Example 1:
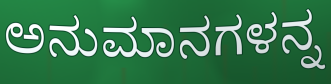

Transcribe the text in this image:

ಅನುಮಾನಗಳನ್ನ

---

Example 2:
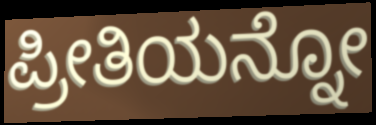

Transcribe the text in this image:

ಪ್ರೀತಿಯನ್ನೋ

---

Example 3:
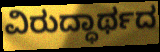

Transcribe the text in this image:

ವಿರುದ್ಧಾರ್ಥದ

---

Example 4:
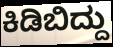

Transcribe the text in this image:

ಕಿಡಿಬಿದ್ದು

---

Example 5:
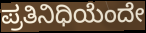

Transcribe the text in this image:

ಪ್ರತಿನಿಧಿಯೆಂದೇ